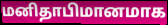
மனிதாபிமானமாக